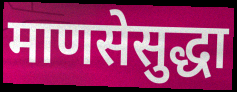
माणसेसुद्धा